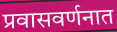
प्रवासवर्णनात